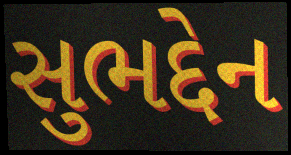
સુભદ્દેન